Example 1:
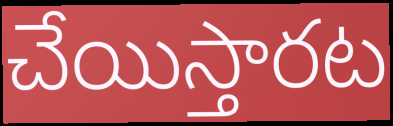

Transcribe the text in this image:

చేయిస్తారట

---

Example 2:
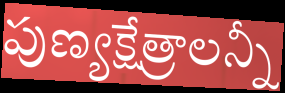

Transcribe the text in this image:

పుణ్యక్షేత్రాలన్నీ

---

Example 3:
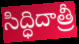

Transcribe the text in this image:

సిద్ధిదాత్రీ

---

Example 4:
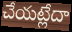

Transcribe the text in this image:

చేయట్లేదా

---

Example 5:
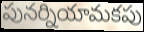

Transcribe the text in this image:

పునర్నియామకపు